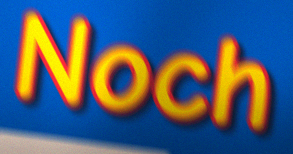
Noch